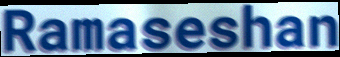
Ramaseshan